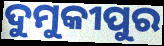
ଦୁମୁକୀପୁର